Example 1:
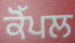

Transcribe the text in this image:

ਕੋੱਪਲ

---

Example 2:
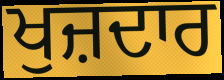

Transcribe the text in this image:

ਖੁਜ਼ਦਾਰ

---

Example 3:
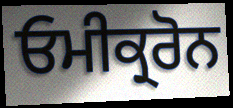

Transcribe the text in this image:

ਓਮੀਕ੍ਰਰੋਨ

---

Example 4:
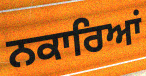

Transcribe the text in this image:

ਨਕਾਰਿਆਂ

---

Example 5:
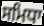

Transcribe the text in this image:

ਸਮਿਧਾ